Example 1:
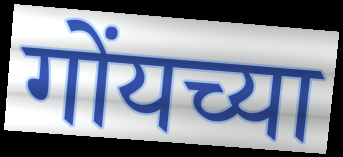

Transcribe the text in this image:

गोंयच्या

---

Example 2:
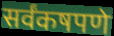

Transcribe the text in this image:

सर्वंकषपणे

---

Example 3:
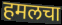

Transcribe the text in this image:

हमलचा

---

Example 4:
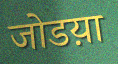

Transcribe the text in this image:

जोडय़ा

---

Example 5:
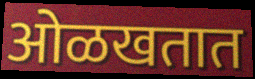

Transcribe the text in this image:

ओळखतात